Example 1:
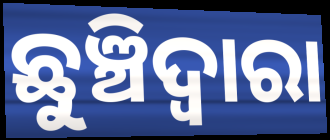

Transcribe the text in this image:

ଛୁଞ୍ଚିଦ୍ଵାରା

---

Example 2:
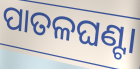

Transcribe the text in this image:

ପାତଳଘଣ୍ଟା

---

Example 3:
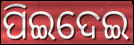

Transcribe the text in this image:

ପିଇଦେଇ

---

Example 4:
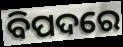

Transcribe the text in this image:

ବିପଦରେ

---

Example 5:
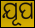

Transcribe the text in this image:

ଯୂପ